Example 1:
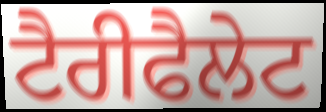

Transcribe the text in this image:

ਟੈਰੀਫੈਲੇਟ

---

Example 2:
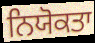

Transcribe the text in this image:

ਨਿਯੋਕਤਾ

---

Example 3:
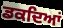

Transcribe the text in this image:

ਡਕਦਿਆਂ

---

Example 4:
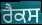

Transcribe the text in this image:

ਰੈਕਸ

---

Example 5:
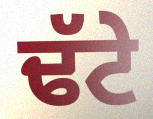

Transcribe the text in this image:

ਢੱਟੇ